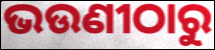
ଭଉଣୀଠାରୁ